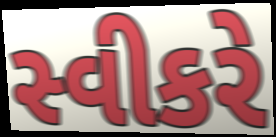
સ્વીકરે